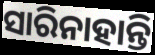
ସାରିନାହାନ୍ତି